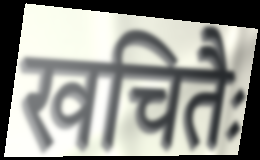
खचितैः